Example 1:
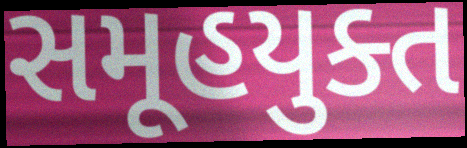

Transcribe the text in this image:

સમૂહયુક્ત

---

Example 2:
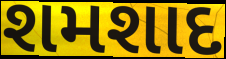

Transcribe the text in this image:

શમશાદ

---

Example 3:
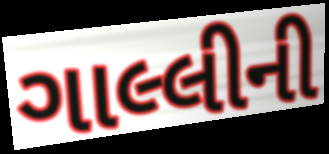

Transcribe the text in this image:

ગાલ્લીની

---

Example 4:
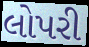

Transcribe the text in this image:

લોપરી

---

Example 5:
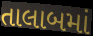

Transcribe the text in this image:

તાલાબમાં